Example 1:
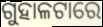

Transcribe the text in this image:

ଗୁହାଳଟାରେ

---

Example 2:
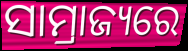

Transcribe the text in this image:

ସାମ୍ରାଜ୍ୟରେ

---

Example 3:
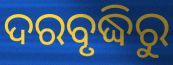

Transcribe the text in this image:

ଦରବୃଦ୍ଧିରୁ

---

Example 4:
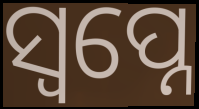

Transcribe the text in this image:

ସ୍ବପ୍ନେ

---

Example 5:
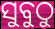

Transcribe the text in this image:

ସୁବୁଠୁ